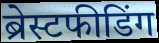
ब्रेस्टफीडिंग